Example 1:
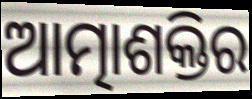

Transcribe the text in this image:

ଆତ୍ମାଶକ୍ତିର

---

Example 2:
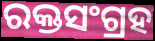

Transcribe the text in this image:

ରକ୍ତସଂଗ୍ରହ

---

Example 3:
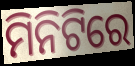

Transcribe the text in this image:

ମିନିଟିରେ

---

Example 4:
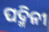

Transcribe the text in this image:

ପଦ୍ମିନୀ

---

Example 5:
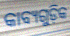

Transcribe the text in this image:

କାବ୍ୟଗୁଡ଼ିକ